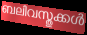
ബലിവസ്തുക്കൾ